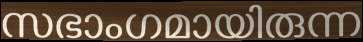
സഭാംഗമായിരുന്ന